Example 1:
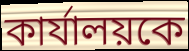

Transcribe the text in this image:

কার্যালয়কে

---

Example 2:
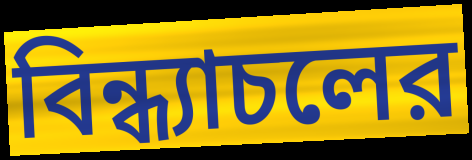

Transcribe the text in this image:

বিন্ধ্যাচলের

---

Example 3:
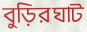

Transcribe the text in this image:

বুড়িরঘাট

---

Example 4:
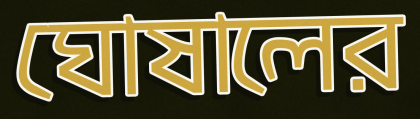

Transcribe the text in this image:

ঘোষালের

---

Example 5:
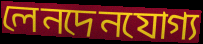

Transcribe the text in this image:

লেনদেনযোগ্য